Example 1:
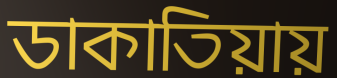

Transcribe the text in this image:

ডাকাতিয়ায়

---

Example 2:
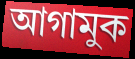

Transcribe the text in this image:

আগামুক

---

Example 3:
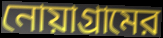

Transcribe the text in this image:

নোয়াগ্রামের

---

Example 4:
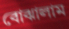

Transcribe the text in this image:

বোঝালাম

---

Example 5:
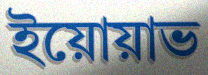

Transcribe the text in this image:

ইয়োয়াভ